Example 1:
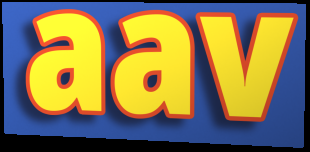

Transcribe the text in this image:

aav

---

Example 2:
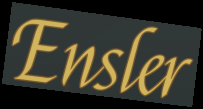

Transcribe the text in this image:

Ensler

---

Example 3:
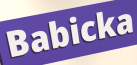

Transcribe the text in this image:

Babicka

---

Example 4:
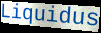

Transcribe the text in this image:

Liquidus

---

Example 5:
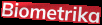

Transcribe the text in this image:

Biometrika